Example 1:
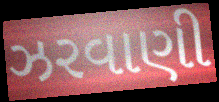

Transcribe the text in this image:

ઝરવાણી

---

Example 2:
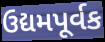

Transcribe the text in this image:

ઉદ્યમપૂર્વક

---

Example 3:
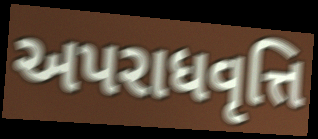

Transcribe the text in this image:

અપરાધવૃત્તિ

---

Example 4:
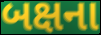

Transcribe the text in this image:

બક્ષના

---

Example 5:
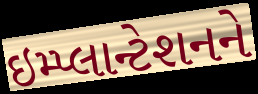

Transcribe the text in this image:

ઇમ્પ્લાન્ટેશનને